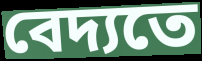
বেদ্যতে